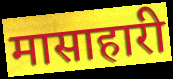
मासाहारी